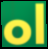
ol